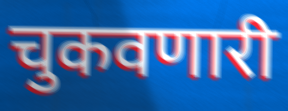
चुकवणारी